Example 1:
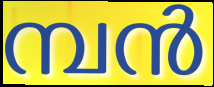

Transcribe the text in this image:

മ്പൻ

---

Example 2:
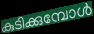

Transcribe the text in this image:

കുടിക്കുമ്പോൾ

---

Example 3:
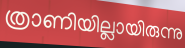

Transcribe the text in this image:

ത്രാണിയില്ലായിരുന്നു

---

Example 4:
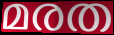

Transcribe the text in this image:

മരത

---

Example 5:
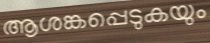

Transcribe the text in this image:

ആശങ്കപ്പെടുകയും